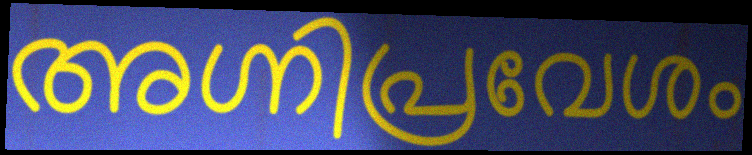
അഗ്നിപ്രവേശം